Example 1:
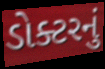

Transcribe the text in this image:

ડોક્ટરનું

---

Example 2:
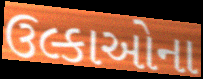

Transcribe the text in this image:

ઉલ્કાઓના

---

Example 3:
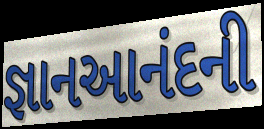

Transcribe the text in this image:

જ્ઞાનઆનંદની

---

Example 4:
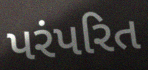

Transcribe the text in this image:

પરંપરિત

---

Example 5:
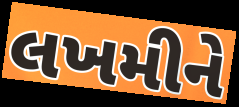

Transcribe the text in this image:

લખમીને